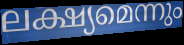
ലക്ഷ്യമെന്നും